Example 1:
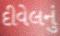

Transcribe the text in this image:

દીવેલનું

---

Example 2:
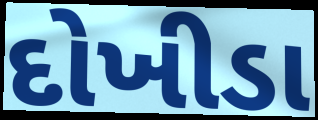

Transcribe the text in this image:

દોખીડા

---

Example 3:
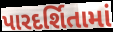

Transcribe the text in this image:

પારદર્શિતામાં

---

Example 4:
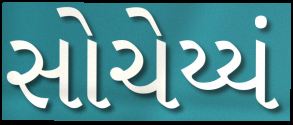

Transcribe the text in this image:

સોચેય્યં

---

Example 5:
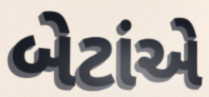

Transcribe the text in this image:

બેટાંએ